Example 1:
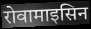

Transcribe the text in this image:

रोवामाइसिन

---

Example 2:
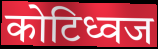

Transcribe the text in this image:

कोटिध्वज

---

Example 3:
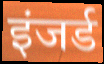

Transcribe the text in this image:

इंजर्ड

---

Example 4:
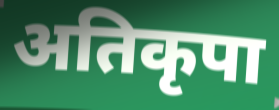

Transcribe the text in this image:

अतिकृपा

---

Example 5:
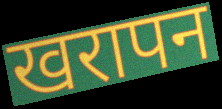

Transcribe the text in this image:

खरापन